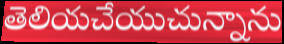
తెలియచేయుచున్నాను